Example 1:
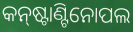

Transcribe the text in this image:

କନ୍‌ଷ୍ଟାଣ୍ଟିନୋପଲ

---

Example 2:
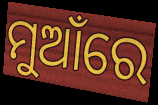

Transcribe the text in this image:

ମୁଆଁରେ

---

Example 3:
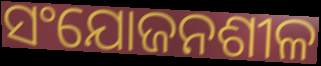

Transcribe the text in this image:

ସଂଯୋଜନଶୀଳ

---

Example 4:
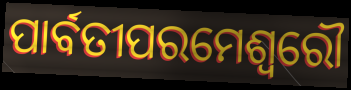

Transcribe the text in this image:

ପାର୍ବତୀପରମେଶ୍ଵରୌ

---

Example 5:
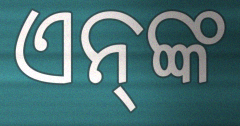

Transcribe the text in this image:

ଏନ୍‌ଙ୍କ